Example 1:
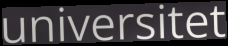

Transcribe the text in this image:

universitet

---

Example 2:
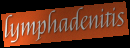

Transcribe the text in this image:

lymphadenitis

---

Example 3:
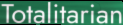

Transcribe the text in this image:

Totalitarian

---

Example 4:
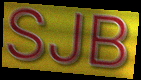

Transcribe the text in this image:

SJB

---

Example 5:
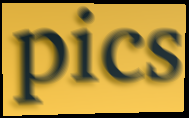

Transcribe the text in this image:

pics